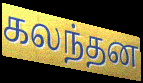
கலந்தன